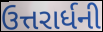
ઉત્તરાર્ધની